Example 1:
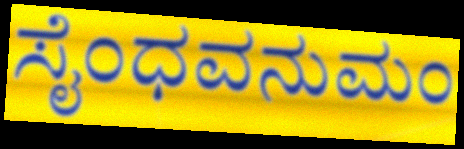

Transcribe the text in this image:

ಸೈಂಧವನುಮಂ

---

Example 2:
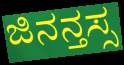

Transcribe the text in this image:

ಜಿನನ್ತಸ್ಸ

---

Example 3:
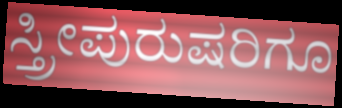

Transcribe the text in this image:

ಸ್ತ್ರೀಪುರುಷರಿಗೂ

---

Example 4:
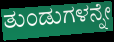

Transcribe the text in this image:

ತುಂಡುಗಳನ್ನೇ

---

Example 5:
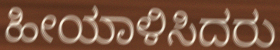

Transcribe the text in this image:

ಹೀಯಾಳಿಸಿದರು